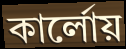
কার্লোয়